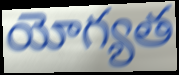
యోగ్యత